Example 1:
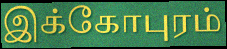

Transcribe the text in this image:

இக்கோபுரம்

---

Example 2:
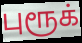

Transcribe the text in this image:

புரூக்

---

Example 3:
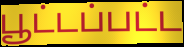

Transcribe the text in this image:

பூட்டப்பட்ட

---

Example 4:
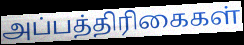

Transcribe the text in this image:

அப்பத்திரிகைகள்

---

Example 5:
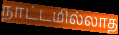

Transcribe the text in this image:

நாட்டமில்லாத